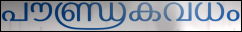
പൗണ്ഡ്രകവധം